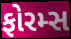
ફોરમ્સ